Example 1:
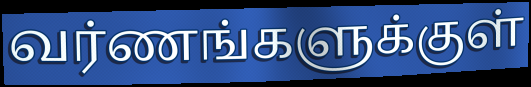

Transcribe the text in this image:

வர்ணங்களுக்குள்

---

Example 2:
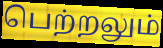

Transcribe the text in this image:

பெற்றலும்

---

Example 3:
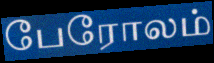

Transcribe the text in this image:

பேரோலம்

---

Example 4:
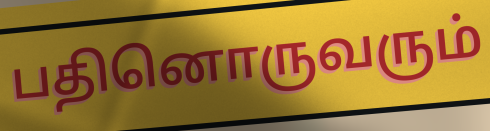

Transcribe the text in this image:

பதினொருவரும்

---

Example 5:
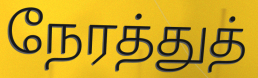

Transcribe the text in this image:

நேரத்துத்